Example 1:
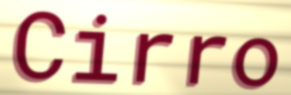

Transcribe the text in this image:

Cirro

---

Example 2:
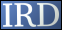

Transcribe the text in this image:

IRD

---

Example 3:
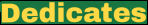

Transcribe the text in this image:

Dedicates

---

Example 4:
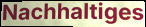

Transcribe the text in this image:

Nachhaltiges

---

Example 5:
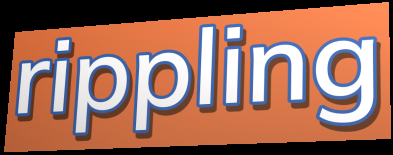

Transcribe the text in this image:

rippling